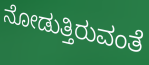
ನೋಡುತ್ತಿರುವಂತೆ